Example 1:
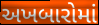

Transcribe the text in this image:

અખબારોમાં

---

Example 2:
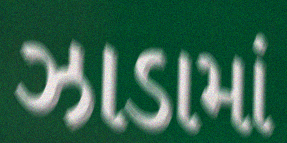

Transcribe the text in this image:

ઝાડામાં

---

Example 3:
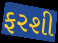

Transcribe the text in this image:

ફરશી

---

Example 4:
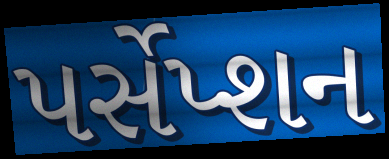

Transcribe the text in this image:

પર્સેપ્શન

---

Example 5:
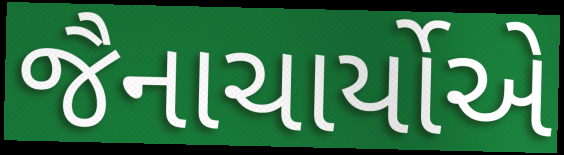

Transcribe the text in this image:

જૈનાચાર્યોએ